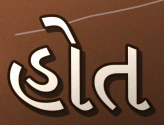
હોત